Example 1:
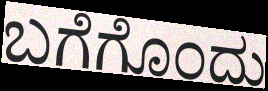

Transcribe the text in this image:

ಬಗೆಗೊಂದು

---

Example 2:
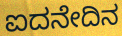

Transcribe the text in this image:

ಐದನೇದಿನ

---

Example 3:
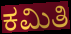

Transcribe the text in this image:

ಕಮಿತಿ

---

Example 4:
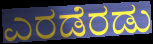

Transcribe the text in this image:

ಎರಡೆರಡು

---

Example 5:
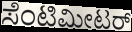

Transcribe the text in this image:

ಸೆಂಟಿಮೀಟರ್